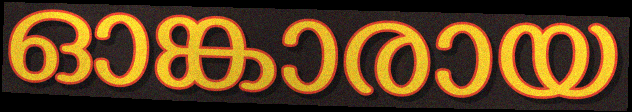
ഓങ്കാരായ